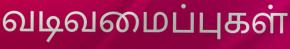
வடிவமைப்புகள்